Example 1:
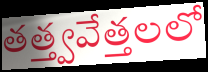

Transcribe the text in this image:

తత్త్వవేత్తలలో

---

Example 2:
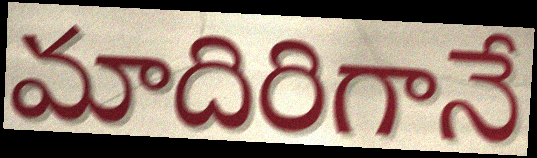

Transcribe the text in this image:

మాదిరిగానే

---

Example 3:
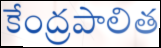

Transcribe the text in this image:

కేంద్రపాలిత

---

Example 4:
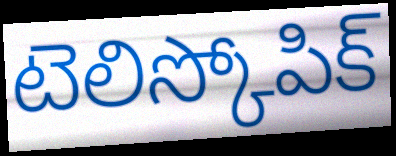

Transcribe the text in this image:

టెలిస్కోపిక్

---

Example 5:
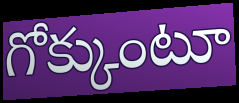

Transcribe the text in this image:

గోక్కుంటూ